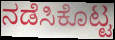
ನಡೆಸಿಕೊಟ್ಟ